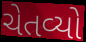
ચેતવ્યો